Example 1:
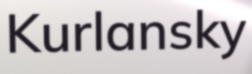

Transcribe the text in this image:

Kurlansky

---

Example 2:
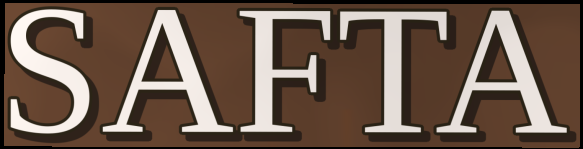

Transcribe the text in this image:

SAFTA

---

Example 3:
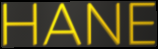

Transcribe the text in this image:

HANE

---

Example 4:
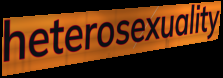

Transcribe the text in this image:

heterosexuality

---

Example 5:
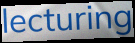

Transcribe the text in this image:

lecturing